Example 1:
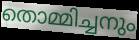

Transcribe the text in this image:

തൊമ്മിച്ചനും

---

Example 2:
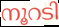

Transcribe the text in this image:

നൂറടി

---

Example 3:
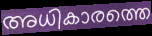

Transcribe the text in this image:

അധികാരത്തെ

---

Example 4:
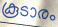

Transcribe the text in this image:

കൂടാരം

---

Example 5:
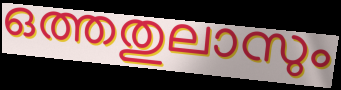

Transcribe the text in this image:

ഒത്തതുലാസും